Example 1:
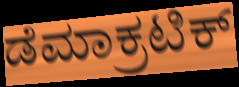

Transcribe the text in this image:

ಡೆಮಾಕ್ರಟಿಕ್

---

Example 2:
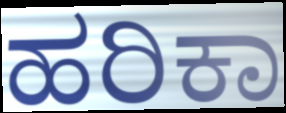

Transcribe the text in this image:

ಹರಿಕಾ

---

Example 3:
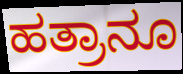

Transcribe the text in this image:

ಹತ್ರಾನೂ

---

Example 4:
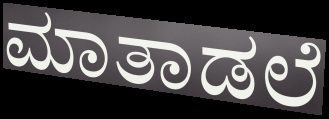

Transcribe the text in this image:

ಮಾತಾಡಲೆ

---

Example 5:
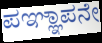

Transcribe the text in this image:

ಪಞ್ಞಾಪನೇ